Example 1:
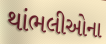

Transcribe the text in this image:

થાંભલીઓના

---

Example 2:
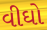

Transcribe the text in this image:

વીઘો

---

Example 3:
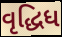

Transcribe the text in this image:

વૃદ્ધિધ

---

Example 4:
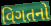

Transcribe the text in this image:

વિગતનો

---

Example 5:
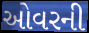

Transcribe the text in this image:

ઓવરની